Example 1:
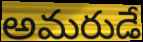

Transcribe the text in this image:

అమరుడే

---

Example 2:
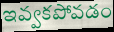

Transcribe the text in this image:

ఇవ్వకపోవడం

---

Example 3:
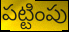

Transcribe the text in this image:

పట్టింపు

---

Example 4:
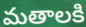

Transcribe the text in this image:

మతాలకి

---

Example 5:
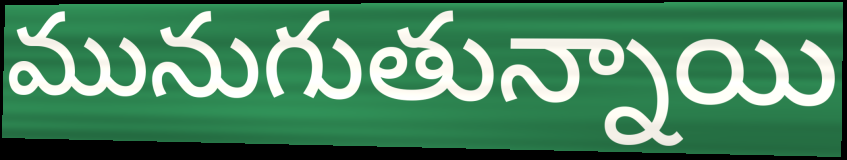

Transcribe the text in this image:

మునుగుతున్నాయి